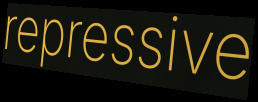
repressive